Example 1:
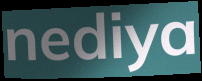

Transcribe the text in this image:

nediya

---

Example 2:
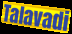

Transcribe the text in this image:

Talavadi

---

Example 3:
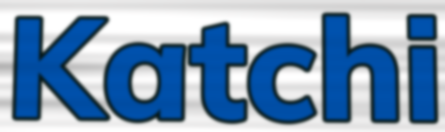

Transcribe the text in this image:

Katchi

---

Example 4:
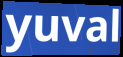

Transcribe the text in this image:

yuval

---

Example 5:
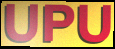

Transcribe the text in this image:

UPU